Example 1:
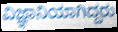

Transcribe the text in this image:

ವಿಜ್ಞಾನಿಯಾಗಿದ್ದರು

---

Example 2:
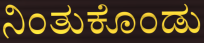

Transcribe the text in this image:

ನಿಂತುಕೊಂಡು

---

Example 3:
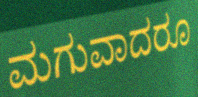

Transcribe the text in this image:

ಮಗುವಾದರೂ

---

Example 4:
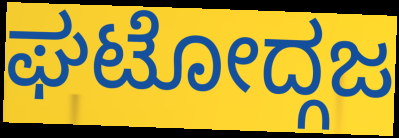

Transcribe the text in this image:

ಘಟೋದ್ಗಜ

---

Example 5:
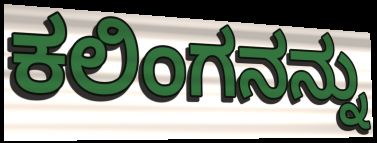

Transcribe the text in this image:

ಕಲಿಂಗನನ್ನು